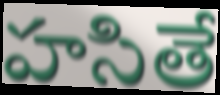
హసితే